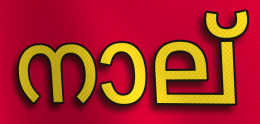
നാല്